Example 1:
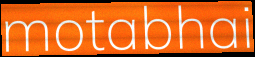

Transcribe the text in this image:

motabhai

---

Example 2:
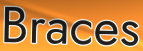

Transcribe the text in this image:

Braces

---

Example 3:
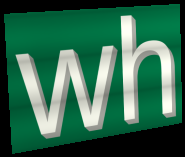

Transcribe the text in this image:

wh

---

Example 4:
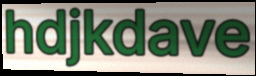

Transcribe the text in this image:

hdjkdave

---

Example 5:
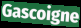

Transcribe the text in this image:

Gascoigne